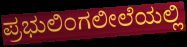
ಪ್ರಭುಲಿಂಗಲೀಲೆಯಲ್ಲಿ